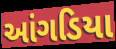
આંગડિયા